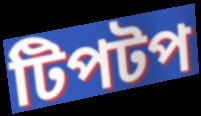
টিপটপ